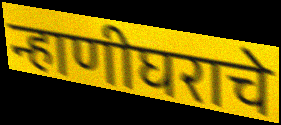
न्हाणीघराचे